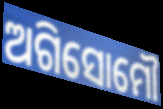
ଅଗିସୋମୌ